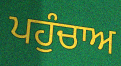
ਪਹੁੰਚਾਅ